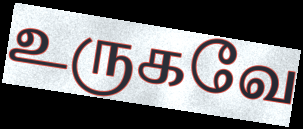
உருகவே